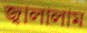
জ্বালালাম